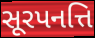
સૂરપનત્તિ